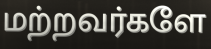
மற்றவர்களே